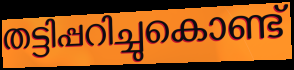
തട്ടിപ്പറിച്ചുകൊണ്ട്